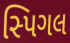
સ્પિગલ